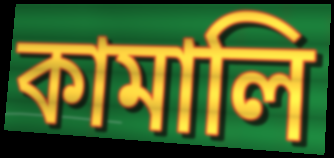
কামালি